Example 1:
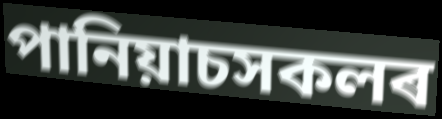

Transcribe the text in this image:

পানিয়াচসকলৰ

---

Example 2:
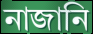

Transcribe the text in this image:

নাজানি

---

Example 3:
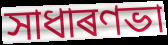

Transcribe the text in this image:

সাধাৰণভা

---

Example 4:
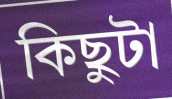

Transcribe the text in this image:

কিছুটা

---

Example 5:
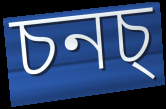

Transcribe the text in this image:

চনচ্